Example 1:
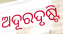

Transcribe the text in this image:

ଅଦୂରଦୃଷ୍ଟି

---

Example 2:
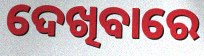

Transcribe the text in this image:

ଦେଖିବାରେ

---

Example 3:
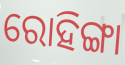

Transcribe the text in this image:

ରୋହିଙ୍ଗା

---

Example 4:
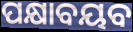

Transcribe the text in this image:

ପକ୍ଷାବୟବ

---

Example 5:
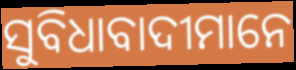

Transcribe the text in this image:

ସୁବିଧାବାଦୀମାନେ